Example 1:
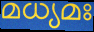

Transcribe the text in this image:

മധ്യമഃ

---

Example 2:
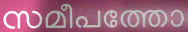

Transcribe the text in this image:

സമീപത്തോ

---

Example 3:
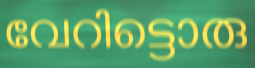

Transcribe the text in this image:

വേറിട്ടൊരു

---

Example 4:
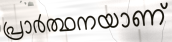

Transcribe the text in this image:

പ്രാർത്ഥനയാണ്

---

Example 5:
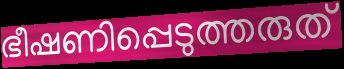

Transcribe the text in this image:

ഭീഷണിപ്പെടുത്തരുത്